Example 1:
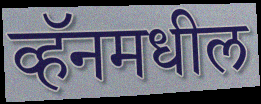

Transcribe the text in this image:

व्हॅनमधील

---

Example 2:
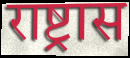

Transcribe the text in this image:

राष्ट्रास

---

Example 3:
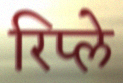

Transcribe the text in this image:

रिप्ले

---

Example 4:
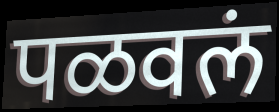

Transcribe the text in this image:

पळवलं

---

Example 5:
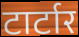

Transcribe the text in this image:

टार्टार